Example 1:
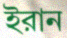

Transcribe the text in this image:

ইরান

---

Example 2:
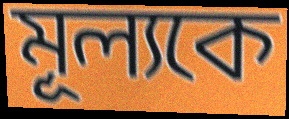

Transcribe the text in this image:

মূল্যকে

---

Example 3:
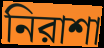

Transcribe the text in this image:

নিরাশা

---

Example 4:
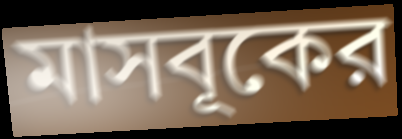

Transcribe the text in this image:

মাসবূকের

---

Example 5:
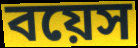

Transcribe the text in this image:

বয়েস